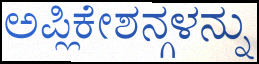
ಅಪ್ಲಿಕೇಶನ್ಗಳನ್ನು